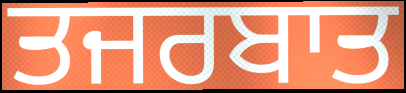
ਤਜਰਬਾਤ